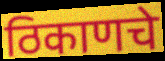
ठिकाणचे